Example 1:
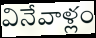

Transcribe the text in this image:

వినేవాళ్లం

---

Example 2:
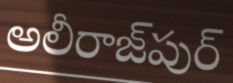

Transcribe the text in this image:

అలీరాజ్‌పుర్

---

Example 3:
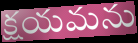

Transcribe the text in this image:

క్షయమను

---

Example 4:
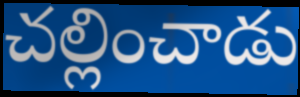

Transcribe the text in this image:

చల్లించాడు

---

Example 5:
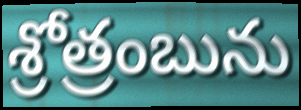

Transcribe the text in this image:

శ్రోత్రంబును